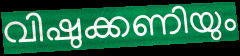
വിഷുക്കണിയും